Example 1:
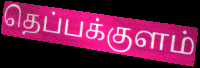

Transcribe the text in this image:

தெப்பக்குளம்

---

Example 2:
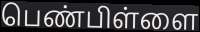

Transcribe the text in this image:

பெண்பிள்ளை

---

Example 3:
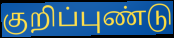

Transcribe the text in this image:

குறிப்புண்டு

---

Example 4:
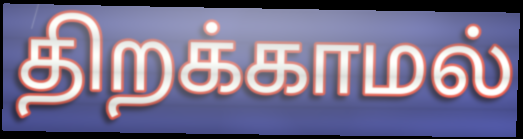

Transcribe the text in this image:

திறக்காமல்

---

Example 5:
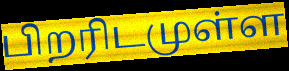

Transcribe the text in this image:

பிறரிடமுள்ள